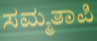
ಸಮ್ಮತಾಪಿ